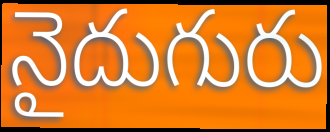
నైదుగురు